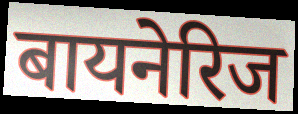
बायनेरिज